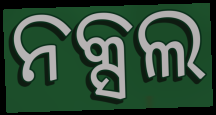
ନକ୍ସଲ